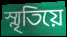
স্মৃতিয়ে